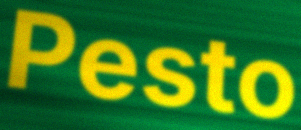
Pesto